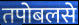
तपोबलसे